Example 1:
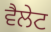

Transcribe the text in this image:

ਵੈਲੇਟ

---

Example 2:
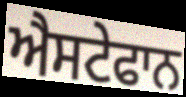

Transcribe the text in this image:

ਐਸਟੇਫਾਨ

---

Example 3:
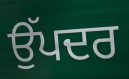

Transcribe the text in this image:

ਉੱਪਦਰ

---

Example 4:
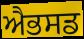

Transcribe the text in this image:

ਐਭਸਡ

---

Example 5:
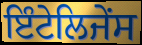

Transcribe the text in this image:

ਇੰਟੇਲਿਜੇਂਸ